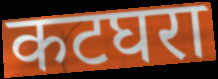
कटघरा